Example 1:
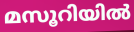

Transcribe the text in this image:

മസൂറിയിൽ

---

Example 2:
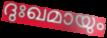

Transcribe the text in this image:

ദുഃഖമായും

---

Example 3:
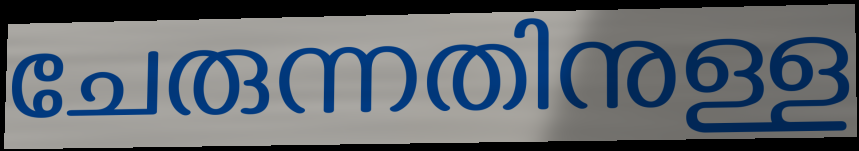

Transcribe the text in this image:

ചേരുന്നതിനുള്ള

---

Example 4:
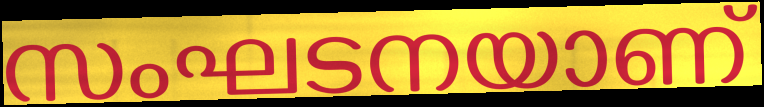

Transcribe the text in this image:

സംഘടനയാണ്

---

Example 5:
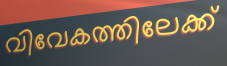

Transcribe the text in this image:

വിവേകത്തിലേക്ക്